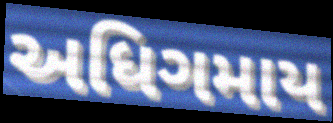
અધિગમાય